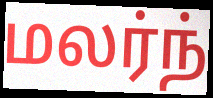
மலர்ந்